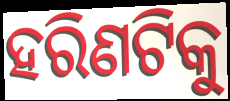
ହରିଣଟିକୁ